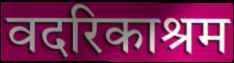
वदरिकाश्रम